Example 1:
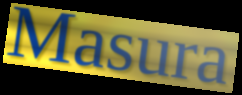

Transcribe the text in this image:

Masura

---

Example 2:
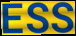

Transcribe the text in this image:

ESS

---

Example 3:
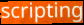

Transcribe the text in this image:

scripting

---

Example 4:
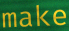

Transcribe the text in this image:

make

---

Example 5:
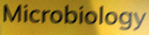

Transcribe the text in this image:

Microbiology